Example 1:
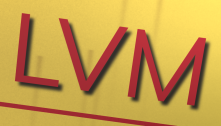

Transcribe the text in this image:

LVM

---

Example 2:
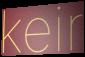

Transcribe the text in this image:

keir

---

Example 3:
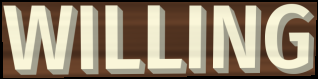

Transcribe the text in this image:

WILLING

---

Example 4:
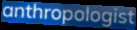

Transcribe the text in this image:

anthropologist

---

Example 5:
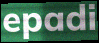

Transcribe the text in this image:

epadi